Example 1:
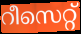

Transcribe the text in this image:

റീസെറ്റ്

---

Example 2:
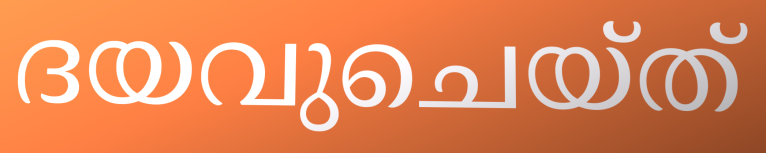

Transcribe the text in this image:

ദയവുചെയ്ത്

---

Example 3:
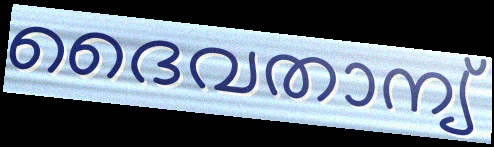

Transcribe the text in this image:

ദൈവതാന്യ്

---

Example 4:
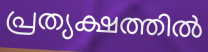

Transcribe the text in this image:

പ്രത്യക്ഷത്തിൽ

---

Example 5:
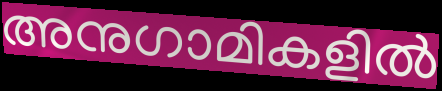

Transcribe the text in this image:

അനുഗാമികളിൽ